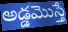
అడ్డమొస్తే